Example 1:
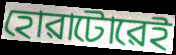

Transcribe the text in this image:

হোৱাটোৱেই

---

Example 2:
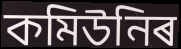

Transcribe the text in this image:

কমিউনিৰ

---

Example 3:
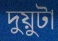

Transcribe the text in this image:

দুয়ুটা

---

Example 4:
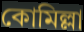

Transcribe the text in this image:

কোমিল্লা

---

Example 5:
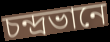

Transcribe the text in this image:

চন্দ্ৰভানে